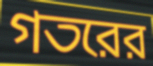
গতরের